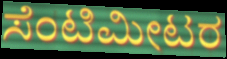
ಸೆಂಟಿಮೀಟರ